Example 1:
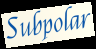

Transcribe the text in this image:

Subpolar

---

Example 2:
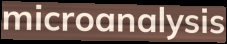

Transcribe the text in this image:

microanalysis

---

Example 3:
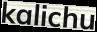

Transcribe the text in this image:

kalichu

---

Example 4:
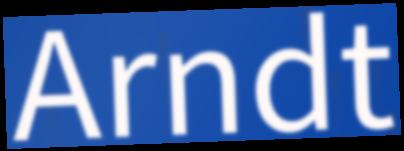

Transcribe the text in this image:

Arndt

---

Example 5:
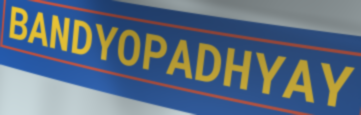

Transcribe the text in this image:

BANDYOPADHYAY